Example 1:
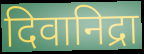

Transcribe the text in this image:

दिवानिद्रा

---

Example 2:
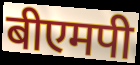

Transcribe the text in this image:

बीएमपी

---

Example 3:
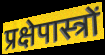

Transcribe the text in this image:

प्रक्षेपास्त्रों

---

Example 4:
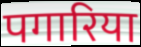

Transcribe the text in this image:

पगारिया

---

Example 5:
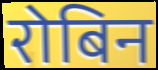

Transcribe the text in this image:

रोबिन